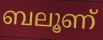
ബലൂണ്